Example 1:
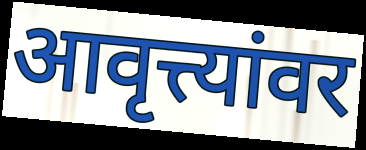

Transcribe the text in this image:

आवृत्त्यांवर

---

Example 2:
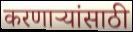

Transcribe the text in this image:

करणार्‍यांसाठी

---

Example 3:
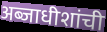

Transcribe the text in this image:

अब्जाधीशांची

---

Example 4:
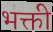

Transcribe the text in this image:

भक्ती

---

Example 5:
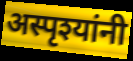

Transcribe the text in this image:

अस्पृश्यांनी